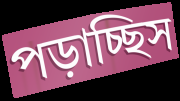
পড়াচ্ছিস